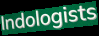
Indologists